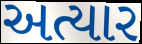
અત્યાર